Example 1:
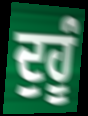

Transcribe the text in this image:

ਦੁਹੂੰ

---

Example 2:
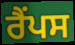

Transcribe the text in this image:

ਰੈਂਪਸ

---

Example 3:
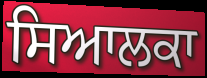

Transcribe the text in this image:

ਸਿਆਲਕਾ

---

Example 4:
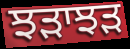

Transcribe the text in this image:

ਝੜਾਝੜ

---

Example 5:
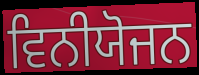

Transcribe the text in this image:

ਵਿਨੀਯੋਜਨ